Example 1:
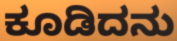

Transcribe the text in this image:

ಕೂಡಿದನು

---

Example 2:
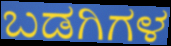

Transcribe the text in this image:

ಬಡಗಿಗಳ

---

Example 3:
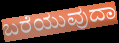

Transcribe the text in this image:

ಬರೆಯುವುದಾ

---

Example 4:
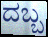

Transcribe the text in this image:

ದಬ್ಬ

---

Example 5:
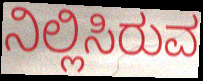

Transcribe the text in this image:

ನಿಲ್ಲಿಸಿರುವ